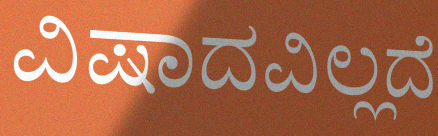
ವಿಷಾದವಿಲ್ಲದೆ